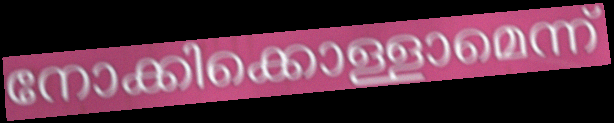
നോക്കിക്കൊള്ളാമെന്ന്